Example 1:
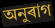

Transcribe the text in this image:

অনুৰাগ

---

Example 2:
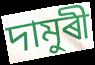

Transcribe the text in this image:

দামুৰী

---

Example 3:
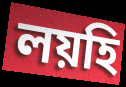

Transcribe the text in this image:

লয়হি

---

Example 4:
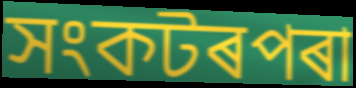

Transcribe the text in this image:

সংকটৰপৰা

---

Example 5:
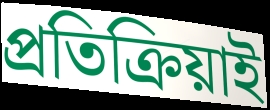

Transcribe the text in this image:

প্ৰতিক্ৰিয়াই